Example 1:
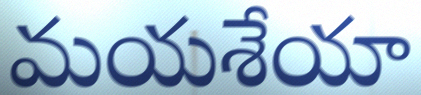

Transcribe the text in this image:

మయశేయా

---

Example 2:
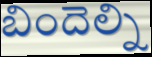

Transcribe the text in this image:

బిందెల్ని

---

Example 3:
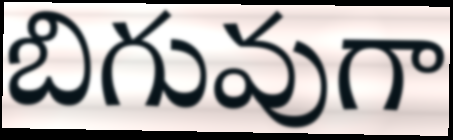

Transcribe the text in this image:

బిగువుగా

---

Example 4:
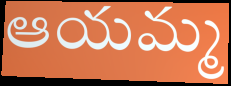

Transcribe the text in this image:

ఆయమ్మ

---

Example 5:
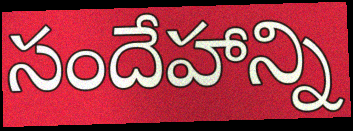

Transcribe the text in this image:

సందేహాన్ని